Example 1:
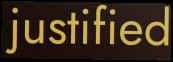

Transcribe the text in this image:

justified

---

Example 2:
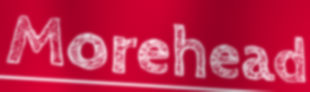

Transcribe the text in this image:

Morehead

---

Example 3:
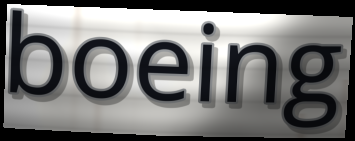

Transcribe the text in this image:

boeing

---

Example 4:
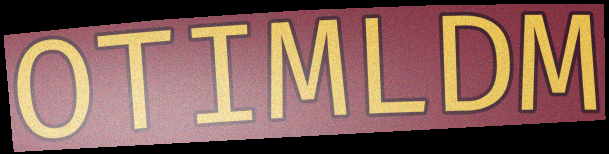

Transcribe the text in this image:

OTIMLDM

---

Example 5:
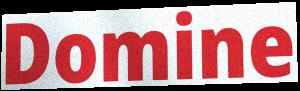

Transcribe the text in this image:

Domine